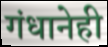
गंधानेही